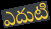
ఎదుటి